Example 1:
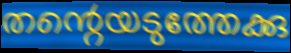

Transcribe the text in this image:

തന്റെയടുത്തേക്കു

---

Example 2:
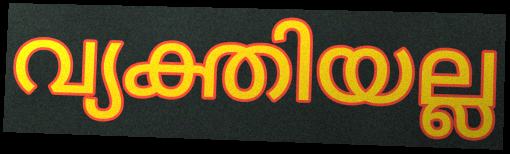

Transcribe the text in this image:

വ്യക്തിയല്ല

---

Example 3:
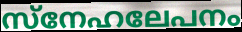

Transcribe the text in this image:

സ്നേഹലേപനം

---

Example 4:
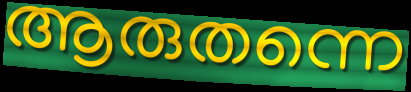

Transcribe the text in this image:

ആരുതന്നെ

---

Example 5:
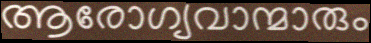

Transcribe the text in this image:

ആരോഗ്യവാന്മാരും